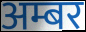
अम्बर